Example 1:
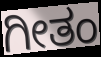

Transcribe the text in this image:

ಗೀತಂ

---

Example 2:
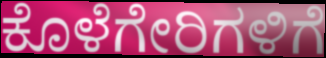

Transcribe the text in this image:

ಕೊಳೆಗೇರಿಗಳಿಗೆ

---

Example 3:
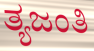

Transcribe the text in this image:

ತ್ಯಜಂತಿ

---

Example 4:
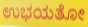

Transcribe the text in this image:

ಉಭಯತೋ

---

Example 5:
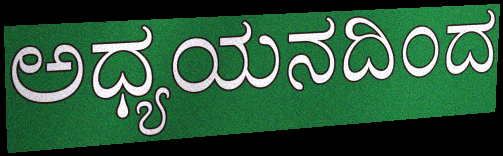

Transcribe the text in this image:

ಅಧ್ಯಯನದಿಂದ